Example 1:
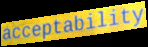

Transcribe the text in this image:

acceptability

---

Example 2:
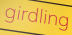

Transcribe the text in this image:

girdling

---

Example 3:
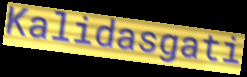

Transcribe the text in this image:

Kalidasgati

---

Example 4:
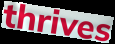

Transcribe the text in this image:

thrives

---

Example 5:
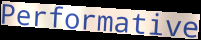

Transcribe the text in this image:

Performative